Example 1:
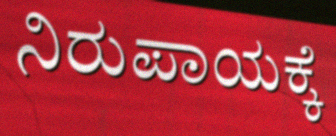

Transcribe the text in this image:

ನಿರುಪಾಯಕ್ಕೆ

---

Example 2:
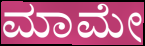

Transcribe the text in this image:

ಮಾಮೇ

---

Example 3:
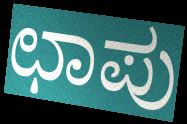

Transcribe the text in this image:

ಛಾಪು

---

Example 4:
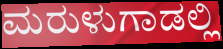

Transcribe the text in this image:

ಮರುಳುಗಾಡಲ್ಲಿ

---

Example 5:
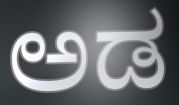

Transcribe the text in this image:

ಅಡ